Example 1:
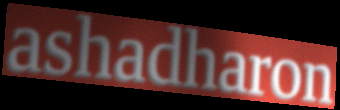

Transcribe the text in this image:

ashadharon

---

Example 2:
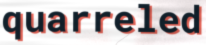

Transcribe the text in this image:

quarreled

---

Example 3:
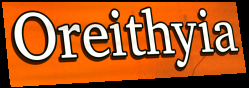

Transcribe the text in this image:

Oreithyia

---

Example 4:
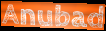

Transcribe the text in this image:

Anubad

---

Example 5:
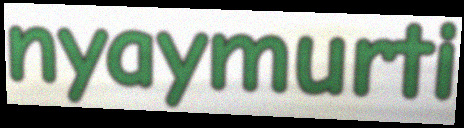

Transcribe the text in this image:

nyaymurti